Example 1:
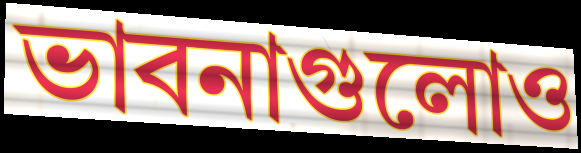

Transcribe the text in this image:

ভাবনাগুলোও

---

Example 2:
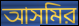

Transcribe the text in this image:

আসমির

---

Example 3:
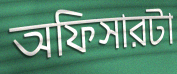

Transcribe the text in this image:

অফিসারটা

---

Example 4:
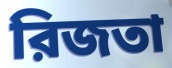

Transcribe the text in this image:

রিজতা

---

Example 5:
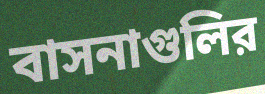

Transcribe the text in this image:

বাসনাগুলির